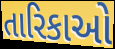
તારિકાઓ